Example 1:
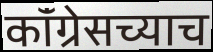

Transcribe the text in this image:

कॉंग्रेसच्याच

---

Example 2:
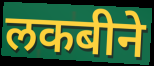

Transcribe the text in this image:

लकबीने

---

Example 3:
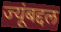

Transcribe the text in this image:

ज्यूंबद्दल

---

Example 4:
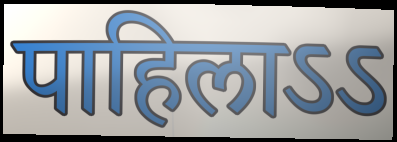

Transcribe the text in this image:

पाहिलाऽऽ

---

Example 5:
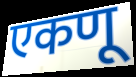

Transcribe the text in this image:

एकणू